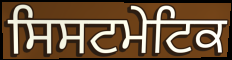
ਸਿਸਟਮੇਟਿਕ